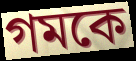
গমকে